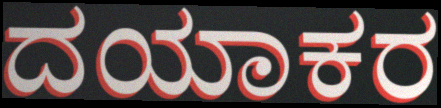
ದಯಾಕರ